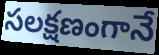
సలక్షణంగానే